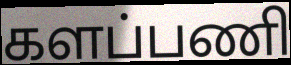
களப்பணி